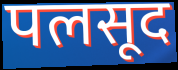
पलसूद